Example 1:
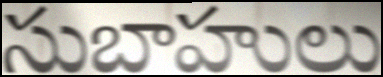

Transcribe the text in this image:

సుబాహులు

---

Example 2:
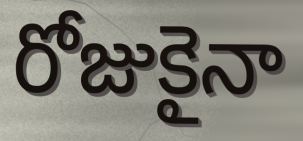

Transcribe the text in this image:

రోజుకైనా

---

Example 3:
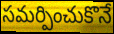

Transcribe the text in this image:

సమర్పించుకొనే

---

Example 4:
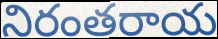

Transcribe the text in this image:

నిరంతరాయ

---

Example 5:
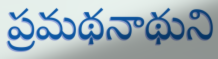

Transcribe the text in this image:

ప్రమథనాథుని